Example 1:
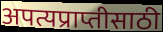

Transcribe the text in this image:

अपत्यप्राप्तीसाठी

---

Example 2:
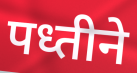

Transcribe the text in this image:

पध्तीने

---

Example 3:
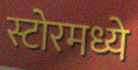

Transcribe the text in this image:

स्टोरमध्ये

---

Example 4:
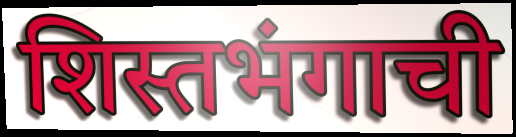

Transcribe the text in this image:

शिस्तभंगाची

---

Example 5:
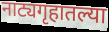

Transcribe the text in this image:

नाट्यगृहातल्या